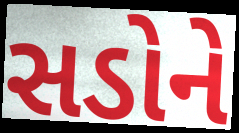
સડોને